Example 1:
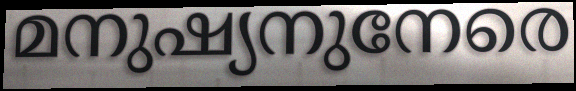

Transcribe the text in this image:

മനുഷ്യനുനേരെ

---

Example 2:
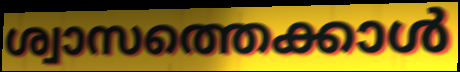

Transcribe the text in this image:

ശ്വാസത്തെക്കാൾ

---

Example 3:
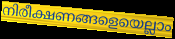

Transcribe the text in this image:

നിരീക്ഷണങ്ങളെയെല്ലാം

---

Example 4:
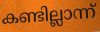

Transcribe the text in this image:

കണ്ടില്ലാന്ന്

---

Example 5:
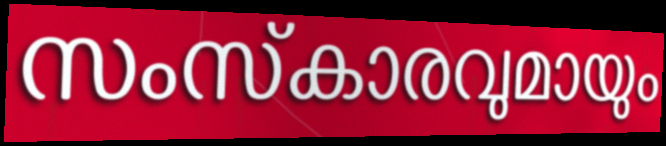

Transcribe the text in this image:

സംസ്‌കാരവുമായും